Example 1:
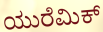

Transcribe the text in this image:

ಯುರೆಮಿಕ್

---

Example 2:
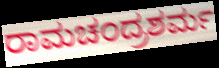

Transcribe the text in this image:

ರಾಮಚಂದ್ರಶರ್ಮ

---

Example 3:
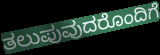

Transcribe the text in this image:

ತಲುಪುವುದರೊಂದಿಗೆ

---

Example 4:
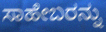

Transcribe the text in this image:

ಸಾಹೇಬರನ್ನು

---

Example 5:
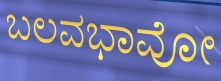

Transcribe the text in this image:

ಬಲವಭಾವೋ